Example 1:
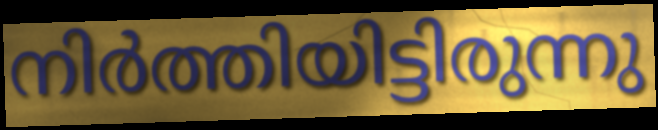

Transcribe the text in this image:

നിർത്തിയിട്ടിരുന്നു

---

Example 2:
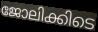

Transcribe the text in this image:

ജോലിക്കിടെ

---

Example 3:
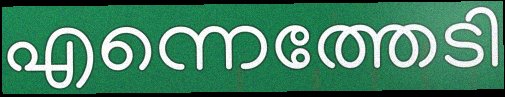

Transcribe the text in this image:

എന്നെത്തേടി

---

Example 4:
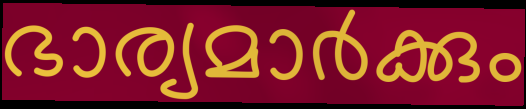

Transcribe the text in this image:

ഭാര്യമാർക്കും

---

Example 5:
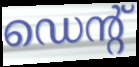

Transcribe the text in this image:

ഡെന്റ്